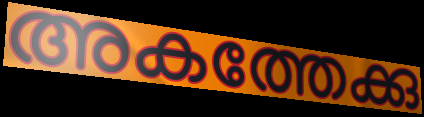
അകത്തേക്കു